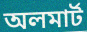
অলমার্ট